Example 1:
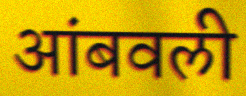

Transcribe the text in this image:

आंबवली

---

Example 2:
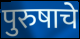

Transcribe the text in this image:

पुरुषाचे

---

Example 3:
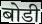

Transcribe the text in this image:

बोडी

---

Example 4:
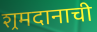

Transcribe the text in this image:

श्रमदानाची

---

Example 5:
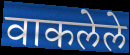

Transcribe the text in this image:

वाकलेले